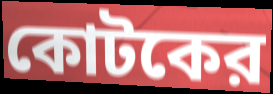
কোটকের